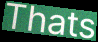
Thats